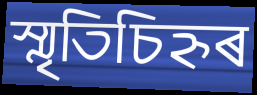
স্মৃতিচিহ্নৰ